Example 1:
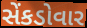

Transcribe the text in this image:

સેંકડોવાર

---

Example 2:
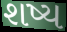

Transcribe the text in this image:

શષ્ય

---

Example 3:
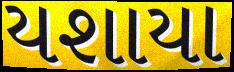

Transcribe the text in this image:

યશાયા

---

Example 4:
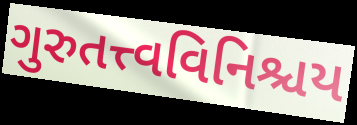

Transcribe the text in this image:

ગુરુતત્ત્વવિનિશ્ચય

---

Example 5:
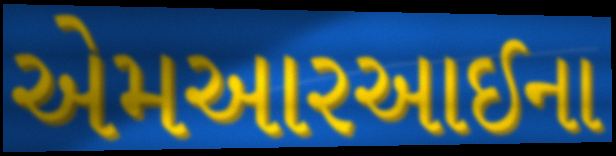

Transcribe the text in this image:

એમઆરઆઈના